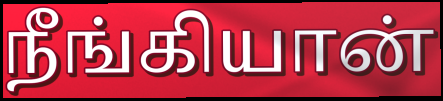
நீங்கியான்